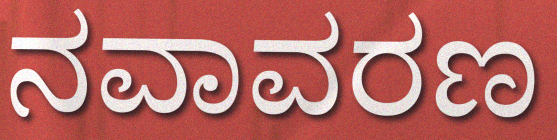
ನವಾವರಣ